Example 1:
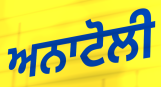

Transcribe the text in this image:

ਅਨਾਟੋਲੀ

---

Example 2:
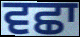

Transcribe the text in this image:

ਵਛਾ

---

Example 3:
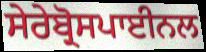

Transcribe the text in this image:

ਸੇਰੇਬ੍ਰੋਸਪਾਈਨਲ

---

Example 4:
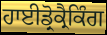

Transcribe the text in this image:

ਹਾਈਡ੍ਰੋਕ੍ਰੈਕਿੰਗ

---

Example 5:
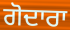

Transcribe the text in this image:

ਗੋਦਾਰਾ